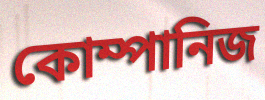
কোম্পানিজ